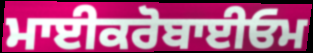
ਮਾਈਕਰੋਬਾਈਓਮ